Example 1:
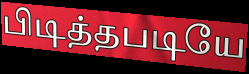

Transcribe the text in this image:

பிடித்தபடியே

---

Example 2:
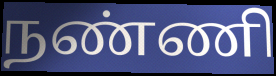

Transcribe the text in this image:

நண்ணி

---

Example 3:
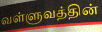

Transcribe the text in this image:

வள்ளுவத்தின்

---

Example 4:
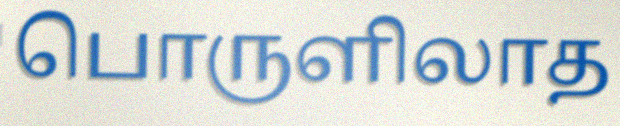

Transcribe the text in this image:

பொருளிலாத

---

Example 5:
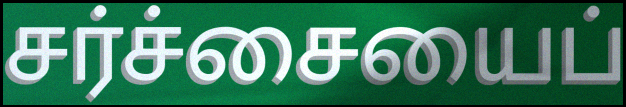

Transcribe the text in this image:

சர்ச்சையைப்